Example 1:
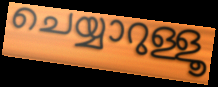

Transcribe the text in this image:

ചെയ്യാറുള്ളൂ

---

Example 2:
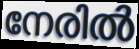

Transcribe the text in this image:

നേരിൽ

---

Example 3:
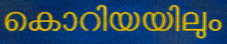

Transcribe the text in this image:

കൊറിയയിലും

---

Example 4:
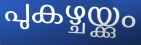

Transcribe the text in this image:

പുകഴ്ചയ്ക്കും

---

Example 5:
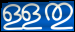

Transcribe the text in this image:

ള്ളതു